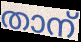
താന്